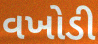
વખોડી